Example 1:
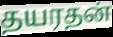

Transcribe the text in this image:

தயரதன்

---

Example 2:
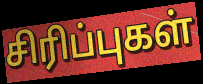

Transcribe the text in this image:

சிரிப்புகள்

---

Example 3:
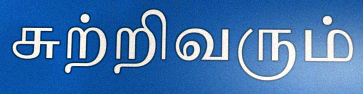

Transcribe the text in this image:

சுற்றிவரும்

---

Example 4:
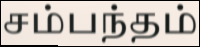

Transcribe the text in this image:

சம்பந்தம்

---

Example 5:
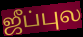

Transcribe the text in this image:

ஜீப்புல